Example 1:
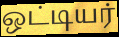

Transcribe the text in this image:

ஒட்டியர்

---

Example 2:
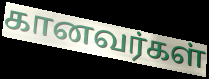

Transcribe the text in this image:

கானவர்கள்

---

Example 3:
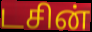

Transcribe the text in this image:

டசின்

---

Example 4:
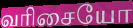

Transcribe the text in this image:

வரிசையோ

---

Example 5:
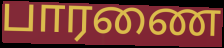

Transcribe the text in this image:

பாரணை